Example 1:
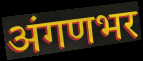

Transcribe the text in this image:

अंगणभर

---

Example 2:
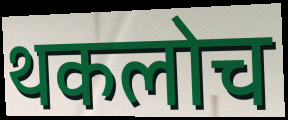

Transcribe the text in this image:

थकलोच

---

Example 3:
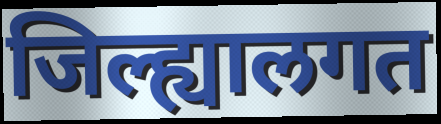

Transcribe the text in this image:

जिल्ह्यालगत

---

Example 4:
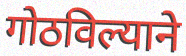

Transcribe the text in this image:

गोठविल्याने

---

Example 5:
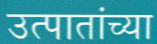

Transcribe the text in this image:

उत्पातांच्या